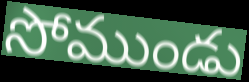
సోముండు